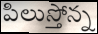
పిలుస్తోన్న